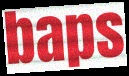
baps